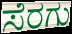
ಸೆರಗು